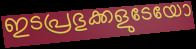
ഇടപ്രഭുക്കളുടേയോ